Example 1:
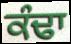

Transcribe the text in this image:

ਕੰਢਾ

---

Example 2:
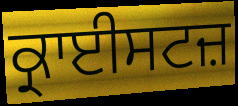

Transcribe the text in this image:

ਕ੍ਰਾਈਸਟਜ਼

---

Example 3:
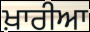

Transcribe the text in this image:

ਖ਼ਾਰੀਆ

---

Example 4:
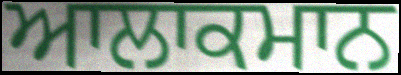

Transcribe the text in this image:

ਆਲਾਕਮਾਨ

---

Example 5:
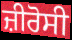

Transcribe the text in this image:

ਜ਼ੀਰੋਸੀ